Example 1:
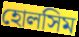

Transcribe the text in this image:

হোলসিম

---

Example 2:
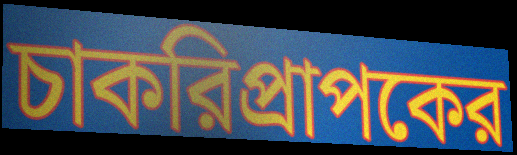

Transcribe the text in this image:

চাকরিপ্রাপকের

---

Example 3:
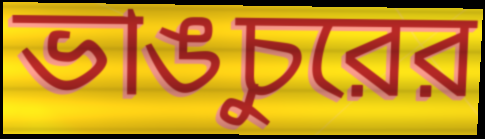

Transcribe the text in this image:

ভাঙচুরের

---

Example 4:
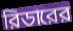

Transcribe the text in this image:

রিডারের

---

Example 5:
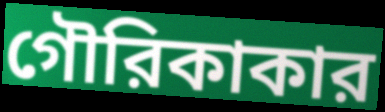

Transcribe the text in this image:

গৌরিকাকার